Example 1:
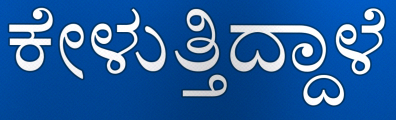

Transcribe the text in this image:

ಕೇಳುತ್ತಿದ್ದಾಳೆ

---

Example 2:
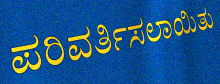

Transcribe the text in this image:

ಪರಿವರ್ತಿಸಲಾಯಿತು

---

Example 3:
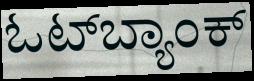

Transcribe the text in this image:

ಓಟ್‌ಬ್ಯಾಂಕ್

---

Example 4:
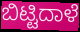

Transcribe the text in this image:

ಬಿಟ್ಟಿದಾಳೆ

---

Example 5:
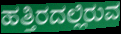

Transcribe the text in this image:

ಹತ್ತಿರದಲ್ಲಿರುವ